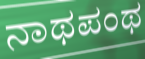
ನಾಥಪಂಥ